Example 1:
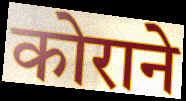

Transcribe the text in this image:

कोराने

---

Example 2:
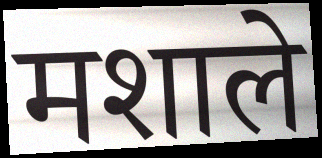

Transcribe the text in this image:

मशाले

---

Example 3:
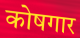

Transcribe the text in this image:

कोषगार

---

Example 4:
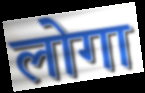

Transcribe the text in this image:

लोगा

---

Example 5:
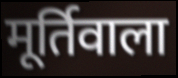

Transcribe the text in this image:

मूर्तिवाला